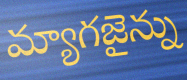
మ్యాగజైన్ను